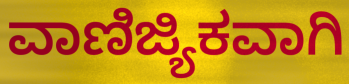
ವಾಣಿಜ್ಯಿಕವಾಗಿ